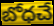
బోధచే